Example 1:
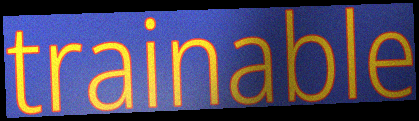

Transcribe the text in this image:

trainable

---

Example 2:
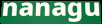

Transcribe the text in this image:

nanagu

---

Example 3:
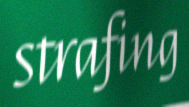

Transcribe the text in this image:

strafing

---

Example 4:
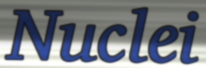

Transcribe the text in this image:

Nuclei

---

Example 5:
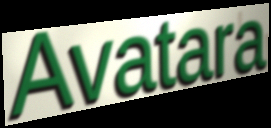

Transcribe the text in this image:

Avatara